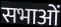
सभाओं